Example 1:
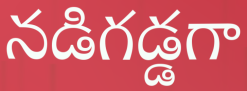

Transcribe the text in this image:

నడిగడ్డగా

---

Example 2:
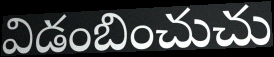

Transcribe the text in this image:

విడంబించుచు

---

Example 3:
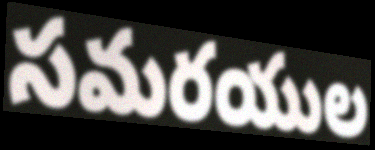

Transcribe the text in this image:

సమరయుల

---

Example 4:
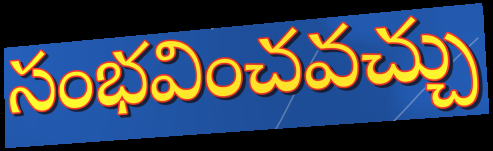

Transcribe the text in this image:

సంభవించవచ్చు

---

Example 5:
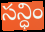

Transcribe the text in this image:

సన్ధిం